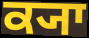
ਕ੍ਯਾ